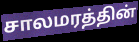
சாலமரத்தின்